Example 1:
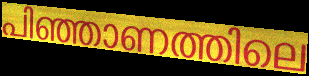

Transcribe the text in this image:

പിഞ്ഞാണത്തിലെ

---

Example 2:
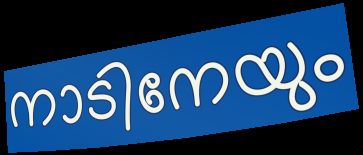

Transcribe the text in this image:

നാടിനേയും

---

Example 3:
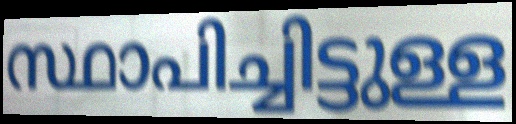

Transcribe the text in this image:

സ്ഥാപിച്ചിട്ടുള്ള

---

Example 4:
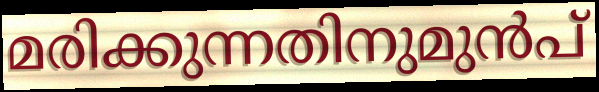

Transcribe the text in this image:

മരിക്കുന്നതിനുമുൻപ്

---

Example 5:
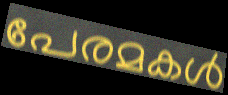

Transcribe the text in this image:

പേരമകൾ